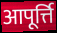
आपूर्त्ति